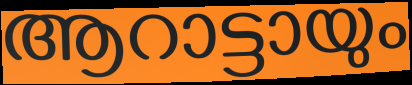
ആറാട്ടായും